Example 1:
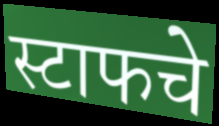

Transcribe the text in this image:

स्टाफचे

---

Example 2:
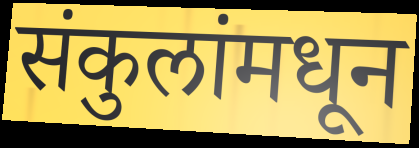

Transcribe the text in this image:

संकुलांमधून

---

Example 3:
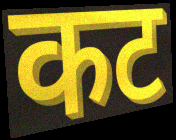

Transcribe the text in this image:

कट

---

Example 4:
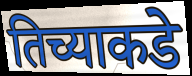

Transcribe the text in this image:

तिच्याकडे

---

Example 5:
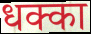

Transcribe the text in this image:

धक्का